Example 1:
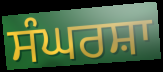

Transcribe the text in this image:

ਸੰਘਰਸ਼ਾ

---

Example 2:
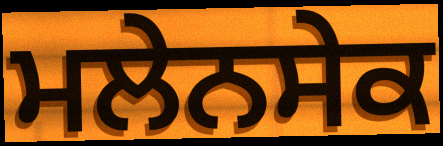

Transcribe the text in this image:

ਮਲੇਨਸੇਕ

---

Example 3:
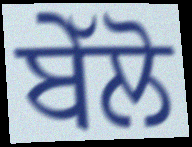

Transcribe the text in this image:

ਬੇੱਲੋ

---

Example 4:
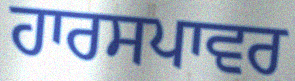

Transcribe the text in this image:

ਹਾਰਸਪਾਵਰ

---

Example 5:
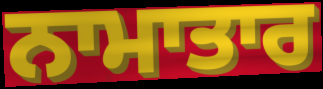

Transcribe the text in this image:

ਨਾਮਾਤਾਰ